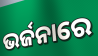
ଭର୍ଜନାରେ